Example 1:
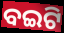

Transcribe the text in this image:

ବଇଟି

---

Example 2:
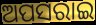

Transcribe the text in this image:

ଅପସରାଇ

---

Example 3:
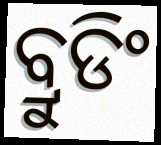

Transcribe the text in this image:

ବ୍ରୁଡିଂ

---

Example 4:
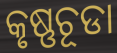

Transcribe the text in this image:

କୃଷ୍ଣଚୂଡା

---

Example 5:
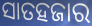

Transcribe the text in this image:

ସାତହଜାର